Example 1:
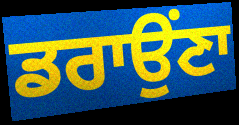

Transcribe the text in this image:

ਡਰਾਉਂਣਾ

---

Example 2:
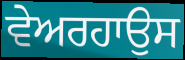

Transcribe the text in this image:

ਵੇਅਰਹਾਉਸ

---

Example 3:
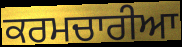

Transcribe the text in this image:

ਕਰਮਚਾਰੀਆ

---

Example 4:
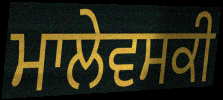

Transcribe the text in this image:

ਮਾਲੇਵਸਕੀ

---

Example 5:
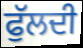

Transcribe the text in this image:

ਫੁੱਲਦੀ